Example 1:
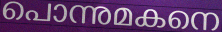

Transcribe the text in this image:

പൊന്നുമകനെ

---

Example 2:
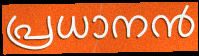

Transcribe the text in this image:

പ്രധാനൻ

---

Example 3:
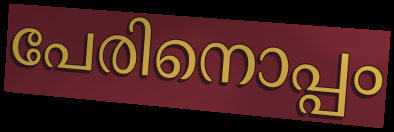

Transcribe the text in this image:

പേരിനൊപ്പം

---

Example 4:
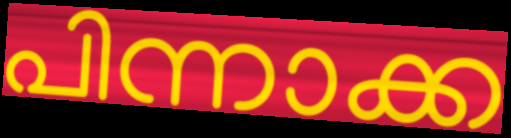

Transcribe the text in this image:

പിന്നാക്ക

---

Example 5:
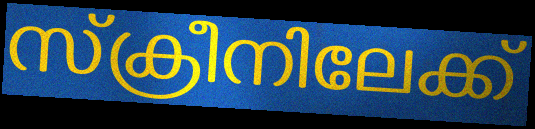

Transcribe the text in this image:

സ്‌ക്രീനിലേക്ക്